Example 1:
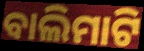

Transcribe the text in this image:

ବାଲିମାଟି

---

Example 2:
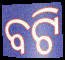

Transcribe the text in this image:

ବଟି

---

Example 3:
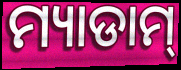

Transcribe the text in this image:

ମ୍ୟାଡାମ୍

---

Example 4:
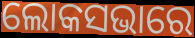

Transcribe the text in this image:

ଲୋକସଭାରେ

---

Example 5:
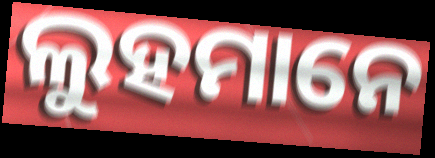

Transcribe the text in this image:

ଲୁହମାନେ